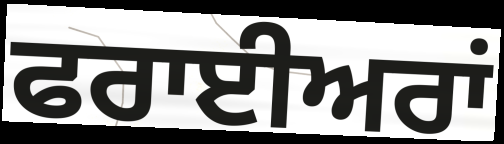
ਫਰਾਈਅਰਾਂ